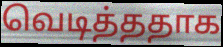
வெடித்ததாக